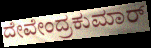
ದೇವೇಂದ್ರಕುಮಾರ್